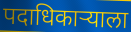
पदाधिकाऱ्याला